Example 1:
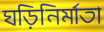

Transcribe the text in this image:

ঘড়িনির্মাতা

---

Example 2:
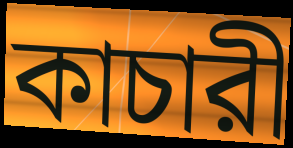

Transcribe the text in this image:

কাচারী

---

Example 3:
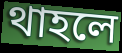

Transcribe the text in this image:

থাহলে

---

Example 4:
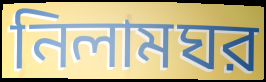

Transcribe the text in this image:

নিলামঘর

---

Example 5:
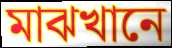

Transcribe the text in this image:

মাঝখানে